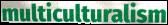
multiculturalism